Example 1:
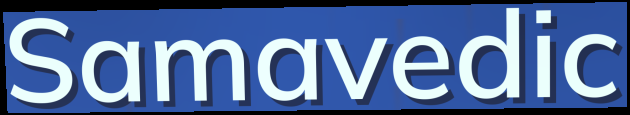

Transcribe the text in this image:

Samavedic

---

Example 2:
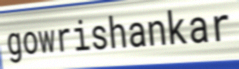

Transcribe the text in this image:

gowrishankar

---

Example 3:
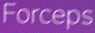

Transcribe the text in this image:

Forceps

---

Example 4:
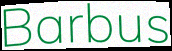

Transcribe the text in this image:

Barbus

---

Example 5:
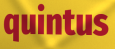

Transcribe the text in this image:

quintus